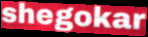
shegokar